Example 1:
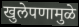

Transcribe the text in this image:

खुलेपणामुळे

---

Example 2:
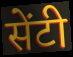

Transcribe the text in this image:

सेंटी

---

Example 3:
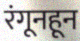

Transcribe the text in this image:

रंगूनहून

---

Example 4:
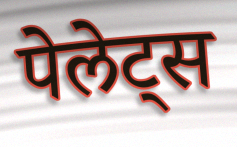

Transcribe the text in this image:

पेलेट्स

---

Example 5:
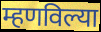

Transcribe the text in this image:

म्हणविल्या